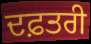
ਦਫ਼ਤਰੀ